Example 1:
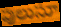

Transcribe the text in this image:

పులుసూ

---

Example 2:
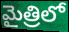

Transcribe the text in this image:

మైత్రిలో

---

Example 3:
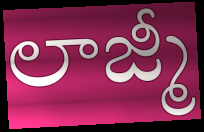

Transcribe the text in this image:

లాజ్మీ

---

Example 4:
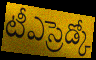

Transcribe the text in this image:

టీఎస్రెడ్కో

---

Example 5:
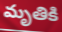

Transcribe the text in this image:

మృతికి